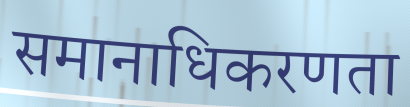
समानाधिकरणता